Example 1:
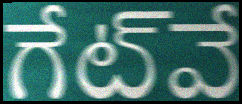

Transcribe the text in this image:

గేట్‌వే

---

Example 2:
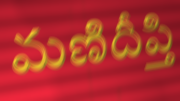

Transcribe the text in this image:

మణిదీప్తి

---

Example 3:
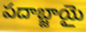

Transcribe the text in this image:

పదాబ్జాయై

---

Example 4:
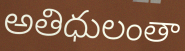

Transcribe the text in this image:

అతిధులంతా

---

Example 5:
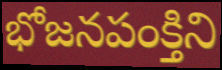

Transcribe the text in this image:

భోజనపంక్తిని